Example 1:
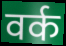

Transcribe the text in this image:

वर्क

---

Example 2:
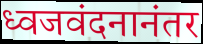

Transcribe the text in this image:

ध्वजवंदनानंतर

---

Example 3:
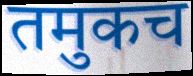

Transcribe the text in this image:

तमुकच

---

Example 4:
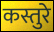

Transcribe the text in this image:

कस्तुरे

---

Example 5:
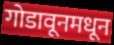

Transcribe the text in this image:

गोडावूनमधून